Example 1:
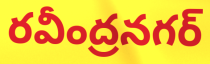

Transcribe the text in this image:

రవీంద్రనగర్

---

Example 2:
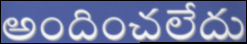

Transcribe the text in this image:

అందించలేదు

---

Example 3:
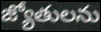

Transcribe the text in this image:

జ్యోతులను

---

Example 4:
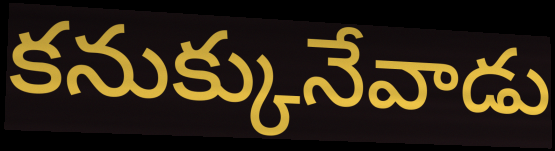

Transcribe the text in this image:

కనుక్కునేవాడు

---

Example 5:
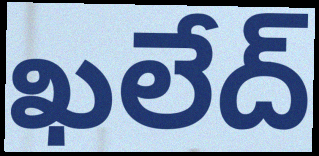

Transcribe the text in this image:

ఖలేద్